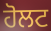
ਹੋਲਟ